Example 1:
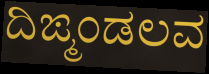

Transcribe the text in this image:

ದಿಙ್ಮಂಡಲವ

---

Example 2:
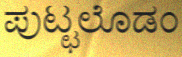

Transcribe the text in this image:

ಪುಟ್ಟಲೊಡಂ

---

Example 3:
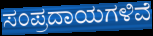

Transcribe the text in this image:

ಸಂಪ್ರದಾಯಗಳಿವೆ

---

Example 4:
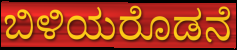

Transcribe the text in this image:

ಬಿಳಿಯರೊಡನೆ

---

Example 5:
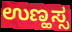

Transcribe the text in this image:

ಉಣ್ಹಸ್ಸ